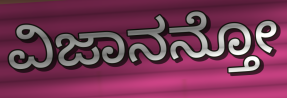
ವಿಜಾನನ್ತೋ